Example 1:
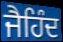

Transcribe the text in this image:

ਜੈਹਿੰਦ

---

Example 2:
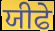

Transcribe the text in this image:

ਯੀਫੇ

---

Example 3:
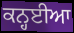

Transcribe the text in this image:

ਕਨ੍ਹਈਆ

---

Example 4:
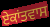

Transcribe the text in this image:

ਏਕਾਂਤਵਾਸ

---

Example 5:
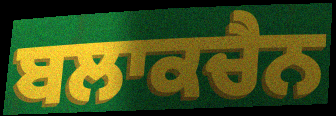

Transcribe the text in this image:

ਬਲਾਕਚੈਨ